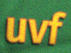
uvf